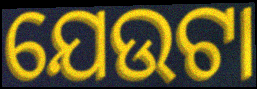
ଯେଉଟା